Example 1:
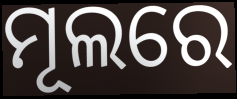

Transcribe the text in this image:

ମୂଲରେ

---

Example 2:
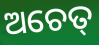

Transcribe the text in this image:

ଅଚେତ୍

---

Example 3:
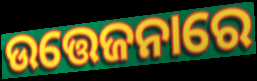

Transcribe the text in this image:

ଉତ୍ତେଜନାରେ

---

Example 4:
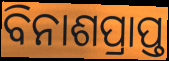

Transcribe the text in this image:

ବିନାଶପ୍ରାପ୍ତ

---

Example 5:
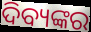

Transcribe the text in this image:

ଦିବ୍ୟଙ୍କର